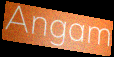
Angam